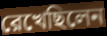
রেখেছিলেন